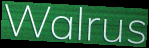
Walrus